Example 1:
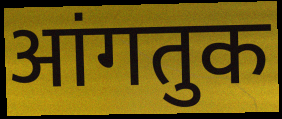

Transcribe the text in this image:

आंगतुक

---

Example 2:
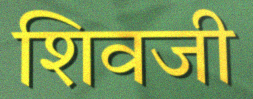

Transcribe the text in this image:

शिवजी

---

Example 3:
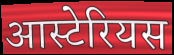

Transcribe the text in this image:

आस्टेरियस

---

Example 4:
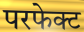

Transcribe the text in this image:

परफेक्ट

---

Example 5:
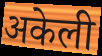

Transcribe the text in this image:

अकेली